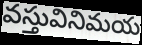
వస్తువినిమయ